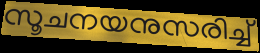
സൂചനയനുസരിച്ച്